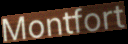
Montfort